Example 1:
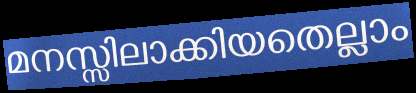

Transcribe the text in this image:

മനസ്സിലാക്കിയതെല്ലാം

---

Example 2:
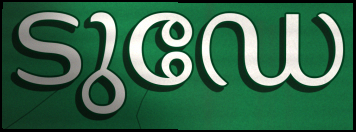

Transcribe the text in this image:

ടുഡേ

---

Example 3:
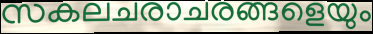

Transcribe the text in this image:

സകലചരാചരങ്ങളെയും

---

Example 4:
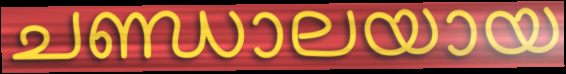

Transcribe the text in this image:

ചണ്ഡാലയായ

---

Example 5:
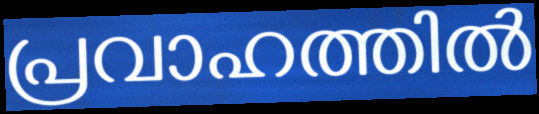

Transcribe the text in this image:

പ്രവാഹത്തിൽ